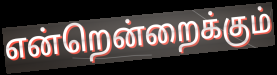
என்றென்றைக்கும்